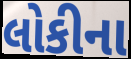
લોકીના